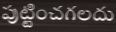
పుట్టించగలదు